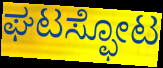
ಘಟಸ್ಫೋಟ